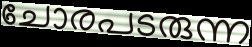
ചോരപടരുന്ന